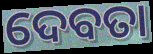
ଦେବତା